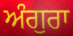
ਅੰਗੁਰਾ